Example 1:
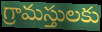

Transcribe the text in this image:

గ్రామస్తులకు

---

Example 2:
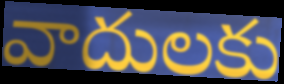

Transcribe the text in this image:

వాదులకు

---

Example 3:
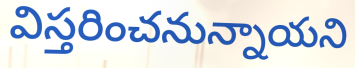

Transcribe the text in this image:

విస్తరించనున్నాయని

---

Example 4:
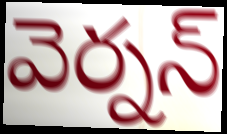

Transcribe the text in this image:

వెర్నన్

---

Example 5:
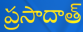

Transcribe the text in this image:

ప్రసాదాత్